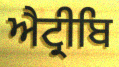
ਐਟ੍ਰੀਬਿ